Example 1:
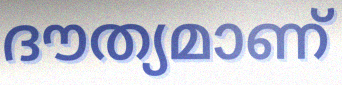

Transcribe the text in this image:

ദൗത്യമാണ്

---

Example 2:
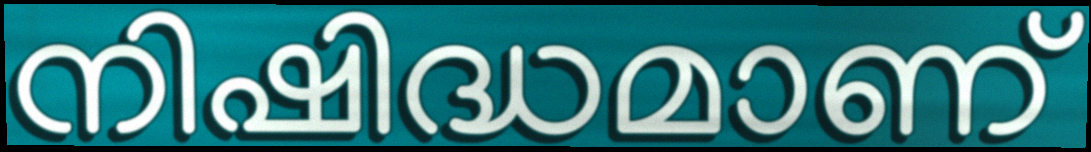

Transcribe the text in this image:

നിഷിദ്ധമാണ്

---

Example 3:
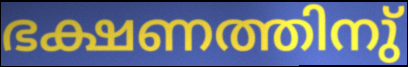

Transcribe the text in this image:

ഭക്ഷണത്തിനു്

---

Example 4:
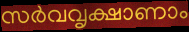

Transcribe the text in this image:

സർവവൃക്ഷാണാം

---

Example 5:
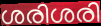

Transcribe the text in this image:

ശരിശരി